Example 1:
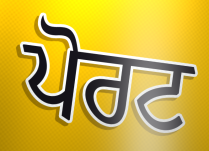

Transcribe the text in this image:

ਪੋਰਟ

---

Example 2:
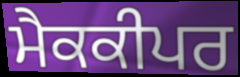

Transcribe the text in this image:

ਮੈਕਕੀਪਰ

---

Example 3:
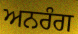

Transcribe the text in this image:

ਅਨਰੰਗ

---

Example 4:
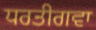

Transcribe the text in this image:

ਧਰਤੀਗਵਾ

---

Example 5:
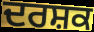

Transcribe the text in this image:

ਦਰਸ਼ਕ